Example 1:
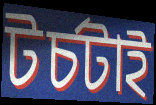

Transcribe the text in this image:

টর্চটাই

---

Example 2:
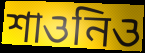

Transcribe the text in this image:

শাওনিও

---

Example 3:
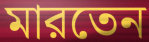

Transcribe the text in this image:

মারতেন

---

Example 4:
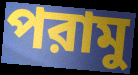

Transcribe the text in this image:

পরামু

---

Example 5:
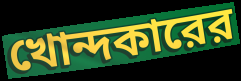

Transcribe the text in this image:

খোন্দকারের